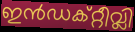
ഇൻഡക്റ്റീവ്ലി